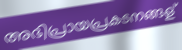
അഭിപ്രായപ്രകടനങ്ങള്